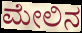
ಮೇಲಿನ